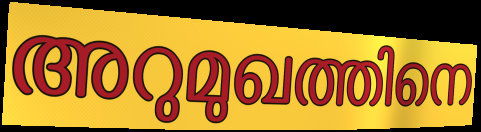
അറുമുഖത്തിനെ